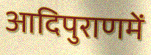
आदिपुराणमें